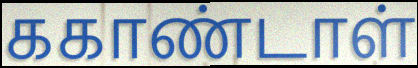
ககாண்டாள்